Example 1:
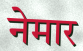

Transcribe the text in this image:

नेमार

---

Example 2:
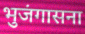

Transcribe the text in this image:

भुजंगासना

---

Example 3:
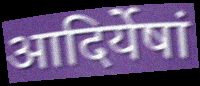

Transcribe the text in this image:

आदिर्येषां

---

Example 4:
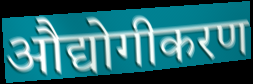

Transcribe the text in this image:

औद्योगीकरण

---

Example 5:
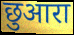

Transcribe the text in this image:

छुआरा